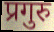
प्रगुरु